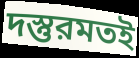
দস্তুরমতই